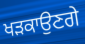
ਖੜਕਾਉਣਗੇ